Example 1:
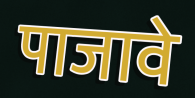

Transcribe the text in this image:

पाजावे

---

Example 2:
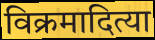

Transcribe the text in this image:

विक्रमादित्या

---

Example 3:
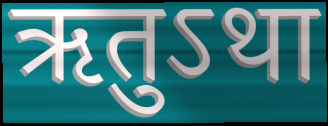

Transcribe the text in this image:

ऋतुऽथा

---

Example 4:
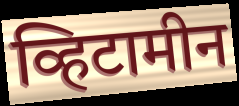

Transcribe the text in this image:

व्हिटामीन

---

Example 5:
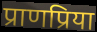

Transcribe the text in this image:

प्राणप्रिया